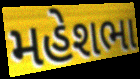
મહેશભા